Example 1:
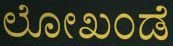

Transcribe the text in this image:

ಲೋಖಂಡೆ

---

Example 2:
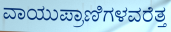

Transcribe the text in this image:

ವಾಯುಪ್ರಾಣಿಗಳವರೆತ್ತ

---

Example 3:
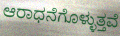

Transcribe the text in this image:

ಆರಾಧನೆಗೊಳ್ಳುತ್ತವೆ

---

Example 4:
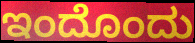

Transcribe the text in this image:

ಇಂದೊಂದು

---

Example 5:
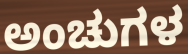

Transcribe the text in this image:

ಅಂಚುಗಳ